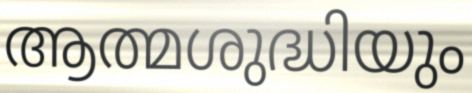
ആത്മശുദ്ധിയും